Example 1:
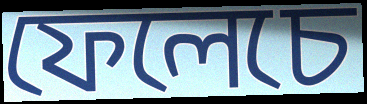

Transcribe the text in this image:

ফেলেচে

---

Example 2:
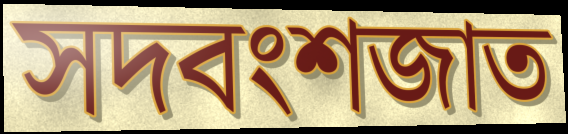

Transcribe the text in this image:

সদবংশজাত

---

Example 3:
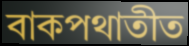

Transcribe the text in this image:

বাকপথাতীত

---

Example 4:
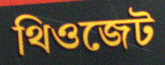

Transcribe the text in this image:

থিওজেট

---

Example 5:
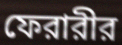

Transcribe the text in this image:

ফেরারীর